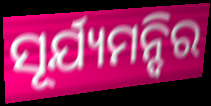
ସୂର୍ଯ୍ୟମନ୍ଦିର